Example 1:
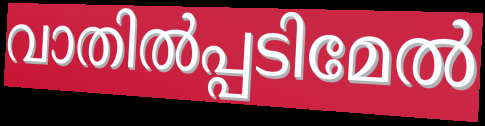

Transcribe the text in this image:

വാതിൽപ്പടിമേൽ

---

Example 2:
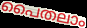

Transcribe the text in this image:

പൈതലാം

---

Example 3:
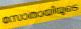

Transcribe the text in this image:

സോതായിയുടെ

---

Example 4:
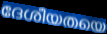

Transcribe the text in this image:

ദേശീയതയെ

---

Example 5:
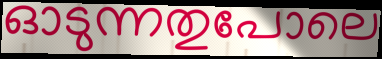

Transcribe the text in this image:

ഓടുന്നതുപോലെ